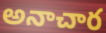
అనాచార